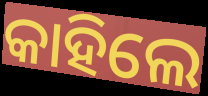
କାହିଲେ